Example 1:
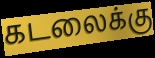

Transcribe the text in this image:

கடலைக்கு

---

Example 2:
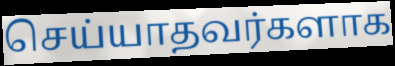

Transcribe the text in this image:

செய்யாதவர்களாக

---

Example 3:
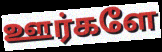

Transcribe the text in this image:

ஊர்களே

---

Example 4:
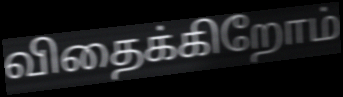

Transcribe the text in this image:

விதைக்கிறோம்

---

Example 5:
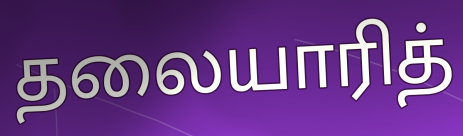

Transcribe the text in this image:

தலையாரித்